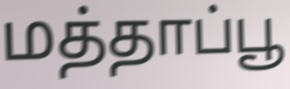
மத்தாப்பூ